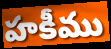
హకీము